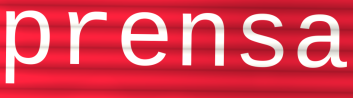
prensa